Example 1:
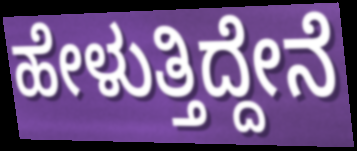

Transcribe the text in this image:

ಹೇಳುತ್ತಿದ್ದೇನೆ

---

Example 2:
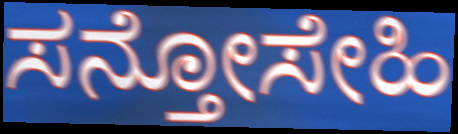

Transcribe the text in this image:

ಸನ್ತೋಸೇಹಿ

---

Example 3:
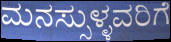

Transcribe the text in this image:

ಮನಸ್ಸುಳ್ಳವರಿಗೆ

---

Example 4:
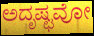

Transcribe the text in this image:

ಅದೃಷ್ಟವೋ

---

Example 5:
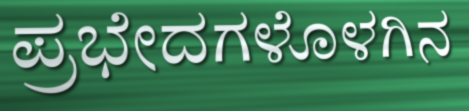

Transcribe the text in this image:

ಪ್ರಭೇದಗಳೊಳಗಿನ